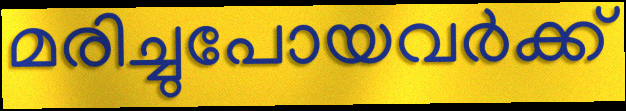
മരിച്ചുപോയവർക്ക്